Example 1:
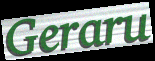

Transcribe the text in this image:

Geraru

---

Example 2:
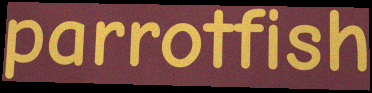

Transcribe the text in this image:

parrotfish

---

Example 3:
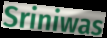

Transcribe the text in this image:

Sriniwas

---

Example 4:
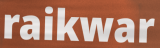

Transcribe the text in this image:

raikwar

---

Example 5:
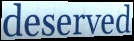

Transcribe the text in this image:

deserved